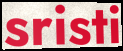
sristi